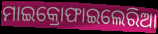
ମାଇକ୍ରୋଫାଇଲେରିଆ